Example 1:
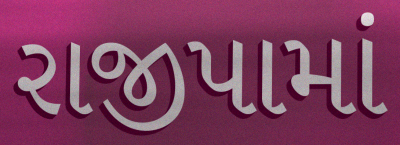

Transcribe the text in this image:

રાજીપામાં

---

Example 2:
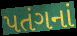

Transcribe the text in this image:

પતંગનાં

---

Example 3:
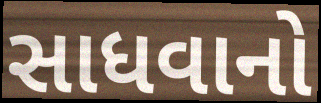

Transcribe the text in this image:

સાધવાનો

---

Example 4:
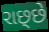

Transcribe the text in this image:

રાછ્છે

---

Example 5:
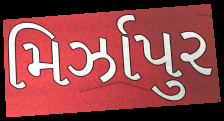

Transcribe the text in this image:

મિર્ઝાપુર